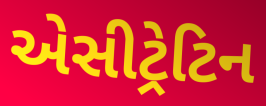
એસીટ્રેટિન